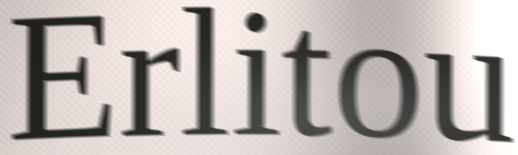
Erlitou